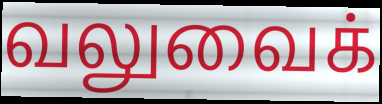
வலுவைக்